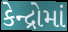
કેન્દ્રોમાં